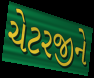
ચેટરજીને